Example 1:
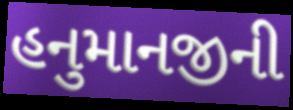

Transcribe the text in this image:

હનુમાનજીની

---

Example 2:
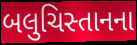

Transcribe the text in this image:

બલુચિસ્તાનના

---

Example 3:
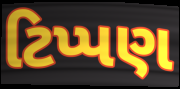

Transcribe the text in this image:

ટિપ્પણ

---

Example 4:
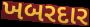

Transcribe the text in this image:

ખબરદાર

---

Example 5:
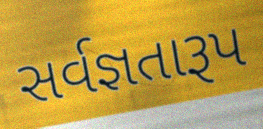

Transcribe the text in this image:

સર્વજ્ઞતારૂપ